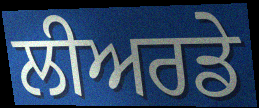
ਲੀਅਰਡੇ